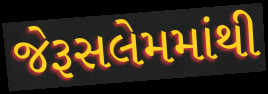
જેરૂસલેમમાંથી